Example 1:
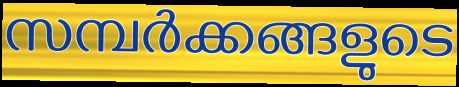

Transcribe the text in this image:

സമ്പർക്കങ്ങളുടെ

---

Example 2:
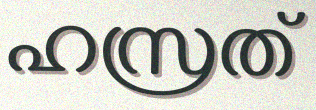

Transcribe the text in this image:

ഹസ്രത്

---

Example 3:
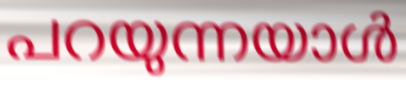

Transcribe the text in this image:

പറയുന്നയാൾ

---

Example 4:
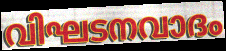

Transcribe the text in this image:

വിഘടനവാദം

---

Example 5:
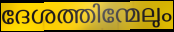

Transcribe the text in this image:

ദേശത്തിന്മേലും